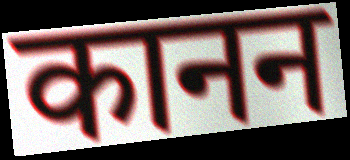
कानन